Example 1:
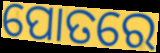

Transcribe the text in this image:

ପୋତରେ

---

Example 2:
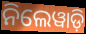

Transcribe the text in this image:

ନିଲେୱାଡ଼ି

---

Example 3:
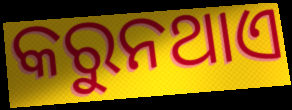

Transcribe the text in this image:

କରୁନଥାଏ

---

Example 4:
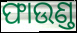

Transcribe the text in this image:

ଫାଉଣ୍ଡ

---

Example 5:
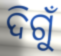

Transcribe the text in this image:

ଦିଗୁଁ